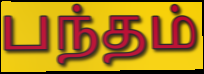
பந்தம்